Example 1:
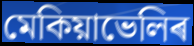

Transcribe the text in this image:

মেকিয়াভেলিৰ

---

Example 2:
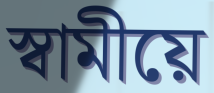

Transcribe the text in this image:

স্বামীয়ে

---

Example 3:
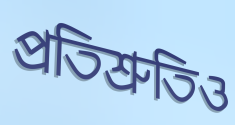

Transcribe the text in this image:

প্ৰতিশ্ৰুতিও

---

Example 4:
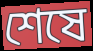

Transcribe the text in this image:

শেষে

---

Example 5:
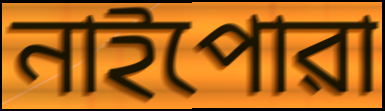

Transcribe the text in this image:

নাইপোৱা